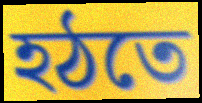
হঠতে